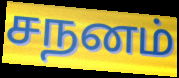
சநனம்